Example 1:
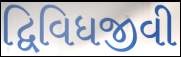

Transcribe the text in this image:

દ્વિવિધજીવી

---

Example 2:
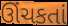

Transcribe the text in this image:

ઊંચકતાં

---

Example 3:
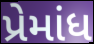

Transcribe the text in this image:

પ્રેમાંધ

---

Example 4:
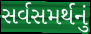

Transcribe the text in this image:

સર્વસમર્થનું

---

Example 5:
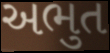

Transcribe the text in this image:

અભુત